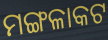
ମଙ୍ଗଳାକଟ